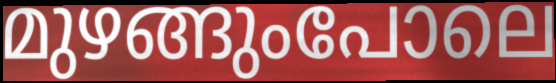
മുഴങ്ങുംപോലെ